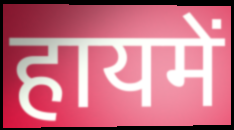
हायमें